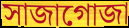
সাজাগোজা